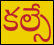
కల్సే